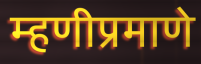
म्हणीप्रमाणे